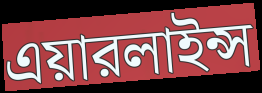
এয়ারলাইন্স